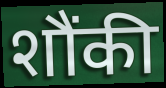
शौंकी